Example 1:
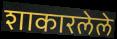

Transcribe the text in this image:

शाकारलेले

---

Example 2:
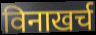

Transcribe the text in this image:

विनाखर्च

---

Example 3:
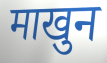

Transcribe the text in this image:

माखुन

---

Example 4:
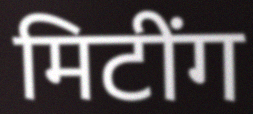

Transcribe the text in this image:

मिटींग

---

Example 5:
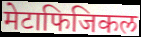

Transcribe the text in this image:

मेटाफिजिकल